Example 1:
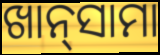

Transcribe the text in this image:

ଖାନ୍‌ସାମା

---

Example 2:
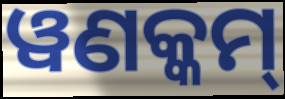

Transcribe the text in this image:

ୱଣକ୍କମ୍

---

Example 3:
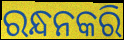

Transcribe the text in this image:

ରନ୍ଧନକରି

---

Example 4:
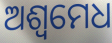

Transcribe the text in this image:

ଅଶ୍ୱମେଧ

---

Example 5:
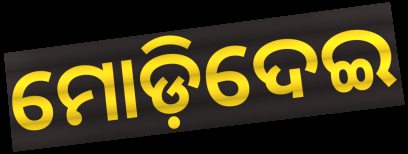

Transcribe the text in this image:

ମୋଡ଼ିଦେଇ